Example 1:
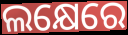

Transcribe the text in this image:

ଲକ୍ଷେରେ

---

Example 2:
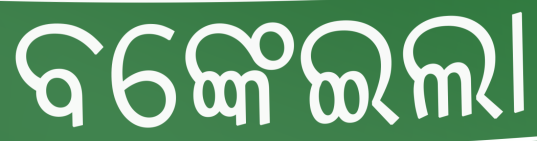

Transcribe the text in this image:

ବଙ୍କେଇଲା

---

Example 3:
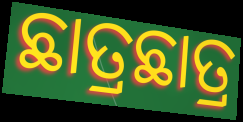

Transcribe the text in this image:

ଛାତ୍ରଛାତ୍ର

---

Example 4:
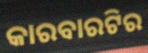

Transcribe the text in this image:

କାରବାରଟିର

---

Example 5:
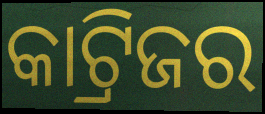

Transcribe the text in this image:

କାଟ୍ରିଜର